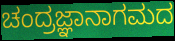
ಚಂದ್ರಜ್ಞಾನಾಗಮದ